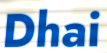
Dhai